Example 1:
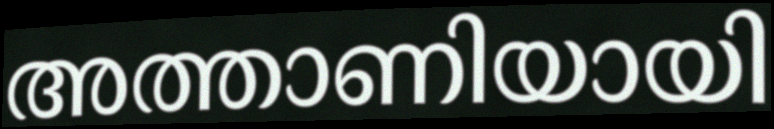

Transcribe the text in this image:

അത്താണിയായി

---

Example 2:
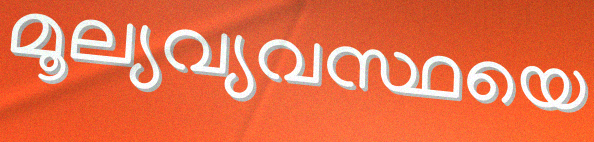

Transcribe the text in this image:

മൂല്യവ്യവസ്ഥയെ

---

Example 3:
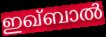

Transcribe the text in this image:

ഇഖ്ബാൽ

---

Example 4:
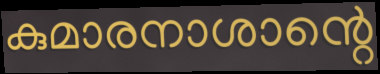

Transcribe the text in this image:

കുമാരനാശാന്റെ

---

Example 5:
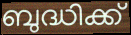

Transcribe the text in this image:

ബുദ്ധിക്ക്